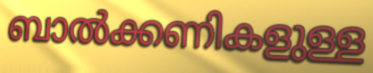
ബാൽക്കണികളുള്ള